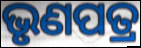
ଭୃଣପତ୍ର